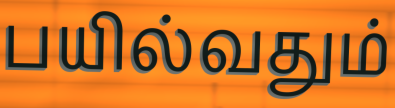
பயில்வதும்